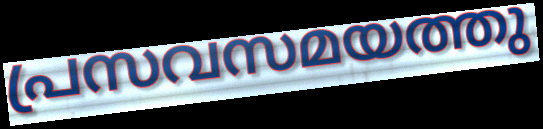
പ്രസവസമയത്തു